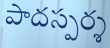
పాదస్పర్శ